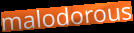
malodorous